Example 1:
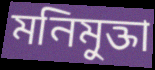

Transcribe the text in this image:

মনিমুক্তা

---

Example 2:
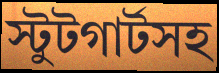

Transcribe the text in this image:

স্টুটগার্টসহ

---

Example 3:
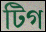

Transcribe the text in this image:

টিগ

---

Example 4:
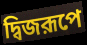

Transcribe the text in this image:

দ্বিজরূপে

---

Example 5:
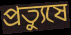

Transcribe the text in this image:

প্রত্যুষে